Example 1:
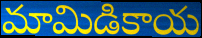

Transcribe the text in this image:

మామిడికాయ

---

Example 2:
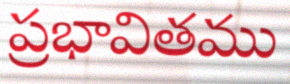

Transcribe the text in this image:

ప్రభావితము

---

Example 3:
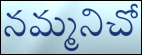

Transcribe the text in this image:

నమ్మనిచో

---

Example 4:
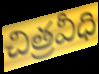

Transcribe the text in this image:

చిత్రవీధి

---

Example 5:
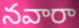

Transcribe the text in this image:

నవారా